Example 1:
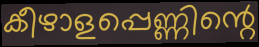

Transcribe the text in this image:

കീഴാളപ്പെണ്ണിന്റെ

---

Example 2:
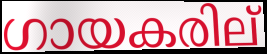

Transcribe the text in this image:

ഗായകരില്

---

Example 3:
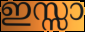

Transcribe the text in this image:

ഇസ്സാ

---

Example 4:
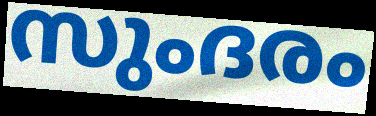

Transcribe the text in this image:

സുംദരം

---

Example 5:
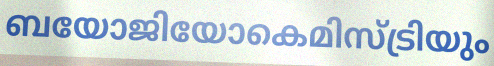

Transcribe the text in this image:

ബയോജിയോകെമിസ്ട്രിയും